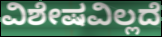
ವಿಶೇಷವಿಲ್ಲದೆ